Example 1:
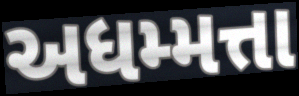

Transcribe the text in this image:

અધમ્મત્તા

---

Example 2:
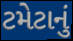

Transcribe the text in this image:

ટમેટાનું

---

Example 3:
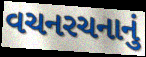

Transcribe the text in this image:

વચનરચનાનું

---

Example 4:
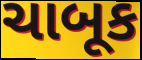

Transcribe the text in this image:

ચાબૂક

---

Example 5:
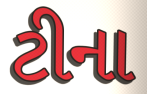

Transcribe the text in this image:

ટીના